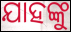
ଯାହଙ୍କୁ